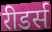
रीडर्स